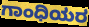
ಗಾಂಧಿಯರ